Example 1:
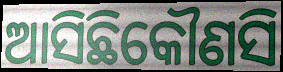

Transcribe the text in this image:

ଆସିଛିକୌଣସି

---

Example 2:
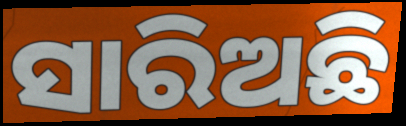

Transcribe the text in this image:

ସାରିଅଛି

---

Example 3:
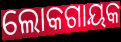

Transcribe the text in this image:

ଲୋକଗାୟକ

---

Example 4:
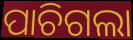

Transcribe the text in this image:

ପାଚିଗଲା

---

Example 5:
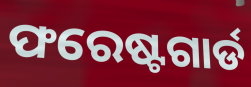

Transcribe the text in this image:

ଫରେଷ୍ଟଗାର୍ଡ